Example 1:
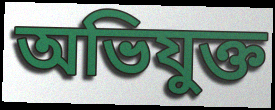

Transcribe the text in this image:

অভিযুক্ত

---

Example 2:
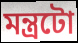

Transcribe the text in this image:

মন্ত্ৰটো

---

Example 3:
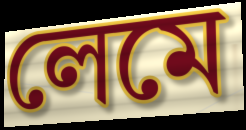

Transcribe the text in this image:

লেমে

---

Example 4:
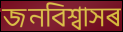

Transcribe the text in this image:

জনবিশ্বাসৰ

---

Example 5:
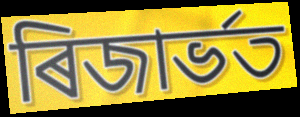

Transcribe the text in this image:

ৰিজাৰ্ভত